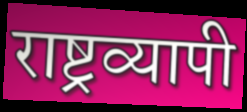
राष्ट्रव्यापी